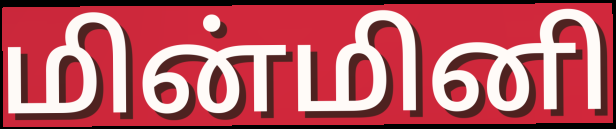
மின்மினி